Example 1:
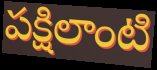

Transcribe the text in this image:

పక్షిలాంటి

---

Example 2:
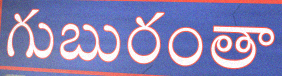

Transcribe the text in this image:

గుబురంతా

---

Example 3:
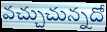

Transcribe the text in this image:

వచ్చుచున్నదో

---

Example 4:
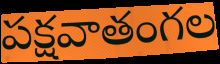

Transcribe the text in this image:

పక్షవాతంగల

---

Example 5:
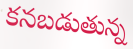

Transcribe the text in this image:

కనబడుతున్న